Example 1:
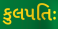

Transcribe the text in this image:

કુલપતિઃ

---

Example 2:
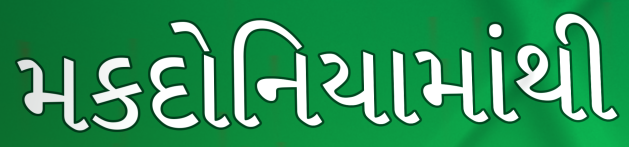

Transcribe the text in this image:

મકદોનિયામાંથી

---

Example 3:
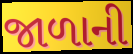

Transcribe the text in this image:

જાળાની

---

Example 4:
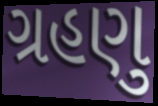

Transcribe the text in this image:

ગ્રહણુ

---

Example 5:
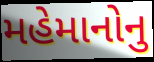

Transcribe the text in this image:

મહેમાનોનુ